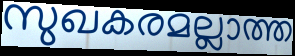
സുഖകരമല്ലാത്ത